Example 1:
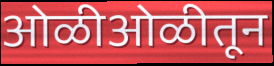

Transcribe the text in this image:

ओळीओळीतून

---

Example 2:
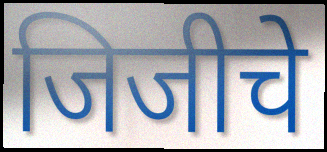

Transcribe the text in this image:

जिजीचे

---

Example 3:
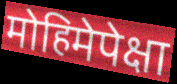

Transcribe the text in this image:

मोहिमेपेक्षा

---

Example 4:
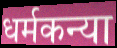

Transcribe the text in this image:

धर्मकन्या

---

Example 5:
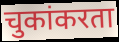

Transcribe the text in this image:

चुकांकरता